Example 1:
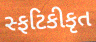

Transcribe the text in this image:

સ્ફટિકીકૃત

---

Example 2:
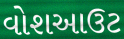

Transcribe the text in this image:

વોશઆઉટ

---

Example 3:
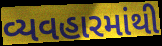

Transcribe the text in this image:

વ્યવહારમાંથી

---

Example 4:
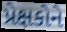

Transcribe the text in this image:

પ્રેક્ષકોને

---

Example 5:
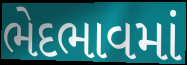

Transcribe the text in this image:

ભેદભાવમાં